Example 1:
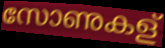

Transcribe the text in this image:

സോണുകള്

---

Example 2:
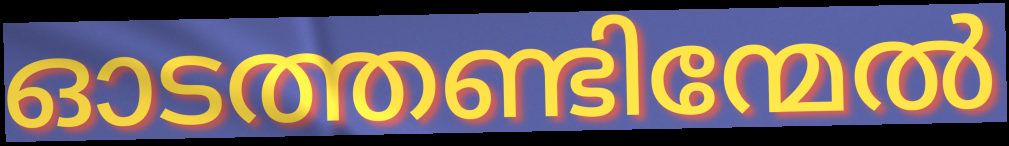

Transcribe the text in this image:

ഓടത്തണ്ടിന്മേൽ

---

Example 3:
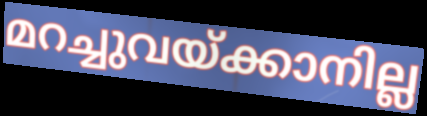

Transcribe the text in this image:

മറച്ചുവയ്ക്കാനില്ല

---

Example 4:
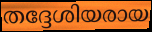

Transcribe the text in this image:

തദ്ദേശിയരായ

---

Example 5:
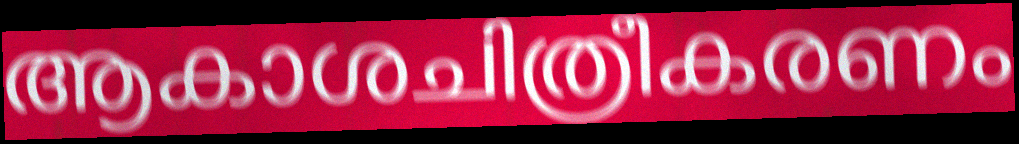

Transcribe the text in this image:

ആകാശചിത്രീകരണം